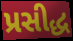
પ્રસીદ્ધ